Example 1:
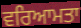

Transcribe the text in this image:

ਵਰਿਆਮਤਾ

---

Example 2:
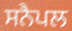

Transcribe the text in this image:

ਸਨੈਪਲ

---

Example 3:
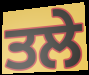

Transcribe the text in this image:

ਤਲੇ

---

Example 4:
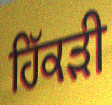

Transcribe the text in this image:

ਹਿੱਕੜੀ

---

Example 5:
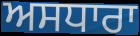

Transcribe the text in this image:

ਅਸਧਾਰਾ